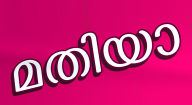
മതിയാ